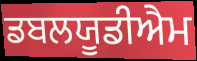
ਡਬਲਯੂਡੀਐਮ